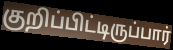
குறிப்பிட்டிருப்பார்